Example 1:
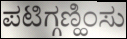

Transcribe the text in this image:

ಪಟಿಗ್ಗಣ್ಹಿಂಸು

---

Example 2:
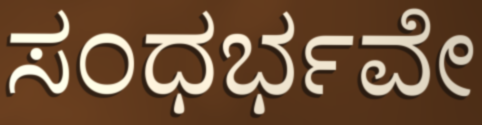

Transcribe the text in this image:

ಸಂಧರ್ಭವೇ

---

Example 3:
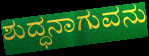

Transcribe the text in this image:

ಶುದ್ಧನಾಗುವನು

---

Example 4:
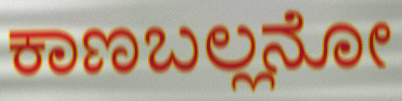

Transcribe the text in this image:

ಕಾಣಬಲ್ಲನೋ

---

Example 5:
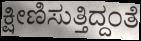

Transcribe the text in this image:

ಕ್ಷೀಣಿಸುತ್ತಿದ್ದಂತೆ